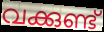
വക്കുണ്ട്